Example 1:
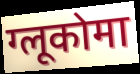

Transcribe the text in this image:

ग्लूकोमा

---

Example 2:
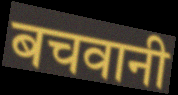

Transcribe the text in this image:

बचवानी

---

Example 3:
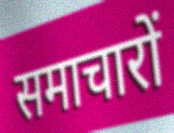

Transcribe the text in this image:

समाचारों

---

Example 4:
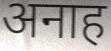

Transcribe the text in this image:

अनाह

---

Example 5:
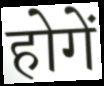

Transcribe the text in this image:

होगें